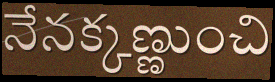
నేనక్కణ్ణుంచి